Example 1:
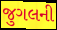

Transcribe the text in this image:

જુગલની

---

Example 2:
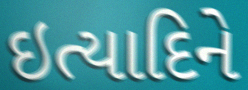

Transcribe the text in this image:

ઇત્‍યાદિને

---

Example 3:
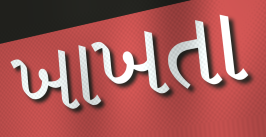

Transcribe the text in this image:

ખાખતા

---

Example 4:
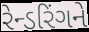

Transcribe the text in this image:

રેન્ડરિંગને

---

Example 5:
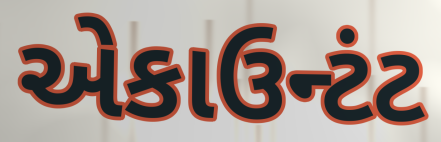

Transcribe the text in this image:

એકાઉન્ટંટ